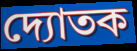
দ্যোতক